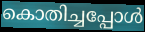
കൊതിച്ചപ്പോൾ